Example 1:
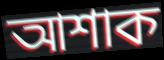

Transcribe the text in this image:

আশাক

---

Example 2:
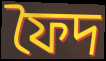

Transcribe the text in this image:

ফৈদ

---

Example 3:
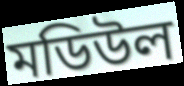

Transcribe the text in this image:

মডিউল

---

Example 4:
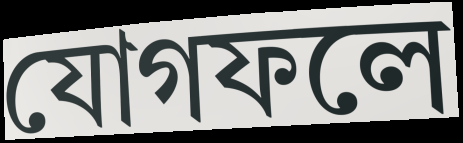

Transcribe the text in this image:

যোগফলে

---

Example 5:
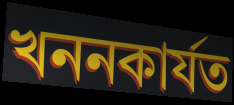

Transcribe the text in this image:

খননকাৰ্যত